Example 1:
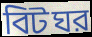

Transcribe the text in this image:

বিটঘর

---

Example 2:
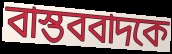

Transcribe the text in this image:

বাস্তববাদকে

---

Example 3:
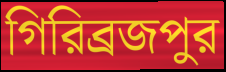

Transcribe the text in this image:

গিরিব্রজপুর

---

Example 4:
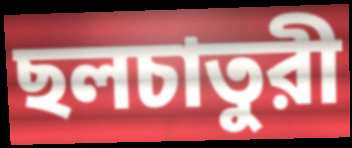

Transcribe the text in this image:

ছলচাতুরী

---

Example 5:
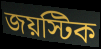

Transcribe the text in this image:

জয়স্টিক